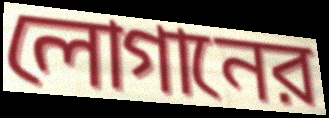
লোগানের